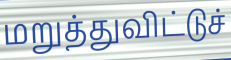
மறுத்துவிட்டுச்